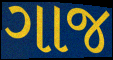
ગાજ